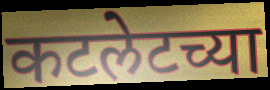
कटलेटच्या